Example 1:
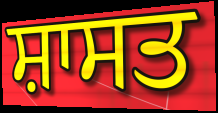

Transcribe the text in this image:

ਸ਼ਾਸਤ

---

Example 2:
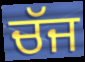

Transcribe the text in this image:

ਚੱਜ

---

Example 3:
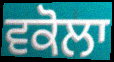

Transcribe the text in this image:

ਵਕੋਲਾ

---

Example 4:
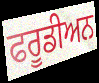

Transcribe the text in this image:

ਫਰੂਡੀਅਨ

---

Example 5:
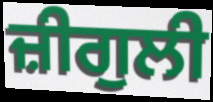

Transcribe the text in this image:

ਜ਼ੀਗੁਲੀ